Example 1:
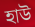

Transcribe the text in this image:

হাউ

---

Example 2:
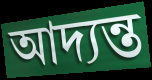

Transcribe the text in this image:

আদ্যন্ত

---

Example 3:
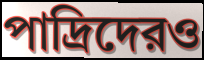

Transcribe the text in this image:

পাদ্রিদেরও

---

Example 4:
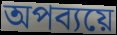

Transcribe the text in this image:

অপব্যয়ে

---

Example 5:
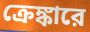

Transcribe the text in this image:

ক্রেঙ্কারে